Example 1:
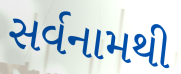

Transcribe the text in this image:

સર્વનામથી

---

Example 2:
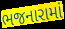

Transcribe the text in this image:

ભજનારામાં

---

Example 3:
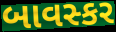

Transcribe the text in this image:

બાવસ્કર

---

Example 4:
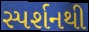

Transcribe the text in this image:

સ્પર્શનથી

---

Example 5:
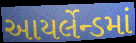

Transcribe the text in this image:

આયર્લેન્ડમાં